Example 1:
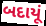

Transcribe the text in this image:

બદાયૂં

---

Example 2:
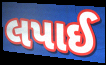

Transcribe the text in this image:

લપાઈ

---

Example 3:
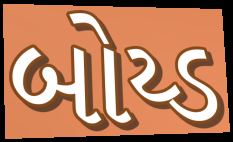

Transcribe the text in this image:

બોય્ડ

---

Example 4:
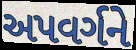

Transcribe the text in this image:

અપવર્ગને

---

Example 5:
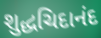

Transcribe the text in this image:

શુદ્ધચિદાનંદ